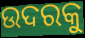
ଉଦରକୁ